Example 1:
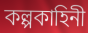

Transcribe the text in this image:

কল্পকাহিনী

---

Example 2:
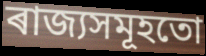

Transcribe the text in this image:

ৰাজ্যসমূহতো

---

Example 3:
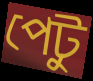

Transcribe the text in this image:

পেটু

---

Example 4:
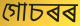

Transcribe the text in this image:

গোচৰৰ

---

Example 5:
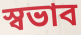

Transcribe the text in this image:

স্বভাব